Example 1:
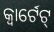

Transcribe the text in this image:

କ୍ୱାର୍ଟେଟ୍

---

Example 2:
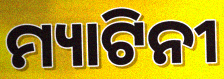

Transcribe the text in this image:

ମ୍ୟାଟିନୀ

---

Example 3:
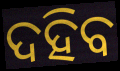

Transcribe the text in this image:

ଦହିବ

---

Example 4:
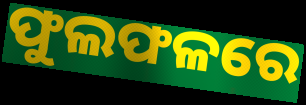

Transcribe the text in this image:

ଫୁଲଫଳରେ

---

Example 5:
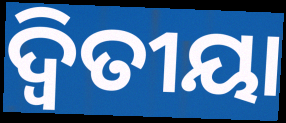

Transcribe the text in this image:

ଦ୍ୱିତୀୟା